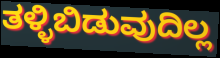
ತಳ್ಳಿಬಿಡುವುದಿಲ್ಲ